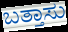
ಬತ್ತಾಸು